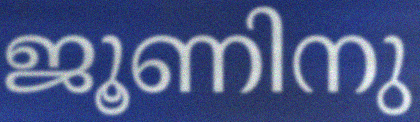
ജൂണിനു